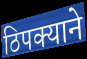
ठिपक्याने